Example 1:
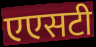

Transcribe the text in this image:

एएसटी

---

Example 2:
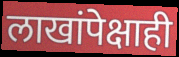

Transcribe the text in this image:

लाखांपेक्षाही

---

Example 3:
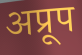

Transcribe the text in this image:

अप्रूप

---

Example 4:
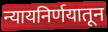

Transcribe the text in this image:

न्यायनिर्णयातून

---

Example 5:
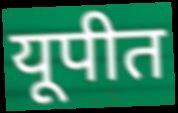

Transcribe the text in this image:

यूपीत